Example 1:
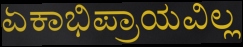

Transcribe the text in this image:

ಏಕಾಭಿಪ್ರಾಯವಿಲ್ಲ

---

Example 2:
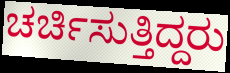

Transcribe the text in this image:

ಚರ್ಚಿಸುತ್ತಿದ್ದರು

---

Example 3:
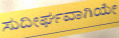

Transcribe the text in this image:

ಸುದೀರ್ಘವಾಗಿಯೇ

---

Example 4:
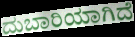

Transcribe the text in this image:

ದುಬಾರಿಯಾಗಿದೆ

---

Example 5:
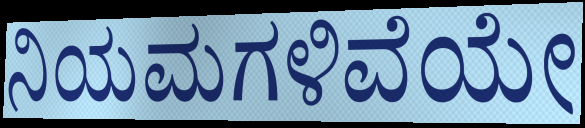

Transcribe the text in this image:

ನಿಯಮಗಳಿವೆಯೇ